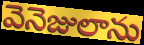
వెనెజులాను